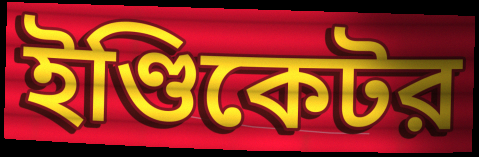
ইণ্ডিকেটর